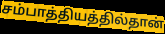
சம்பாத்தியத்தில்தான்